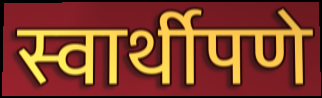
स्वार्थीपणे